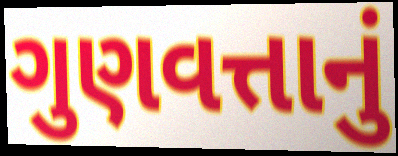
ગુણવત્તાનું